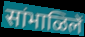
सांभाळिलें